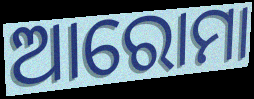
ଆରୋମା